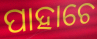
ପାହାଚେ